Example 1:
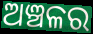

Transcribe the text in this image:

ଅଞ୍ଚଳର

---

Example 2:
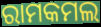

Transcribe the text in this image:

ରାମକମଲ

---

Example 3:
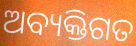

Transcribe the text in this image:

ଅବ୍ୟକ୍ତିଗତ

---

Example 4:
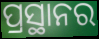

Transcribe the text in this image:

ପ୍ରସ୍ଥାନର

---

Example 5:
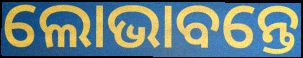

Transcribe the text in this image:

ଲୋଭାବନ୍ତେ